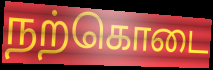
நற்கொடை